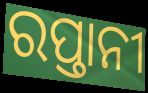
ରପ୍ତାନୀ